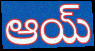
ఆయ్